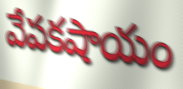
వేపకషాయం